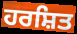
ਹਰਸ਼ਿਤ